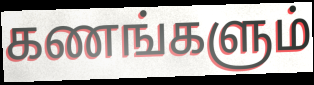
கணங்களும்